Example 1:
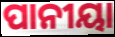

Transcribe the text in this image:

ପାନୀୟା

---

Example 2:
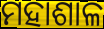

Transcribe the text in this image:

ମହାଶାଳ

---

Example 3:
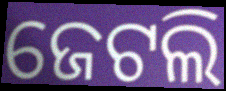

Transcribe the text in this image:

ଜେଟଲି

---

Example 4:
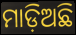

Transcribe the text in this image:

ମାଡ଼ିଅଛି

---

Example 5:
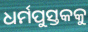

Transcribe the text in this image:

ଧର୍ମପୁସ୍ତକକୁ